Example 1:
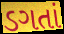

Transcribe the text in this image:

ડગતાં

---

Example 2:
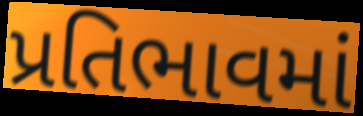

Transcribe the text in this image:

પ્રતિભાવમાં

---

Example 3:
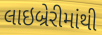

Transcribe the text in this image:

લાઇબ્રેરીમાંથી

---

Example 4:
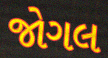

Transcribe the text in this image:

જોગલ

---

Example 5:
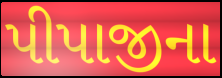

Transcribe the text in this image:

પીપાજીના